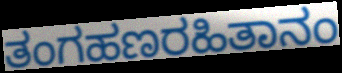
ತಂಗಹಣರಹಿತಾನಂ